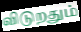
விடுறதும்